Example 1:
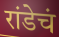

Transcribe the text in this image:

रांडेचं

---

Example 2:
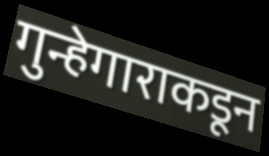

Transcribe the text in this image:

गुन्हेगाराकडून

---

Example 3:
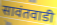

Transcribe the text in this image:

सावंतवाडी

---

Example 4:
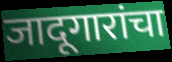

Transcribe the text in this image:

जादूगारांचा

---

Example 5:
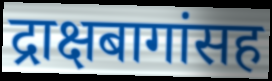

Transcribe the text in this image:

द्राक्षबागांसह